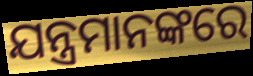
ଯନ୍ତ୍ରମାନଙ୍କରେ